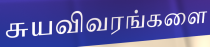
சுயவிவரங்களை